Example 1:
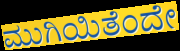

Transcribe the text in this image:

ಮುಗಿಯಿತೆಂದೇ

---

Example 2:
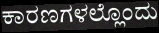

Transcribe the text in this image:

ಕಾರಣಗಳಲ್ಲೊಂದು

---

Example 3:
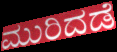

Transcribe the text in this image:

ಮುರಿದಡೆ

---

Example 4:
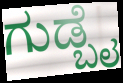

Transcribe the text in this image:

ಗುಡ್ಬೈ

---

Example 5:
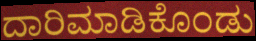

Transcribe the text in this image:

ದಾರಿಮಾಡಿಕೊಂಡು